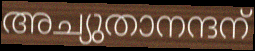
അച്യുതാനന്ദന്